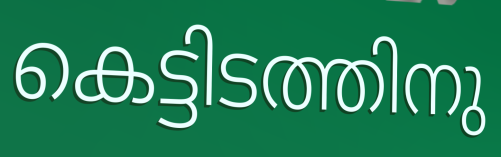
കെട്ടിടത്തിനു